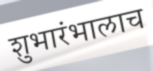
शुभारंभालाच